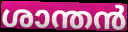
ശാന്തൻ